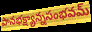
పానభక్ష్యాన్నసంభవమ్